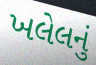
ખલેલનું